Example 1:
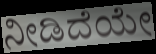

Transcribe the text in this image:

ನೀಡಿದೆಯೇ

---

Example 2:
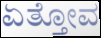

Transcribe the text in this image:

ಏತ್ತೋವ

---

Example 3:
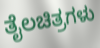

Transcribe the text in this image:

ತೈಲಚಿತ್ರಗಳು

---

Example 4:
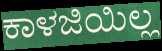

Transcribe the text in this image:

ಕಾಳಜಿಯಿಲ್ಲ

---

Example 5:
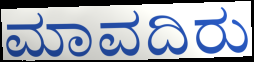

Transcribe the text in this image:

ಮಾವದಿರು